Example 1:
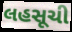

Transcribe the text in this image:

લહસૂચી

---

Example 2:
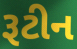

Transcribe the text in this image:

રૂટીન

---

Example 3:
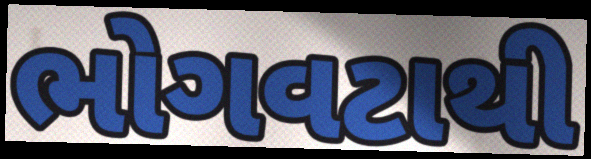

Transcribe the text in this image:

ભોગવટાથી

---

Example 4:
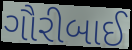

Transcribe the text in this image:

ગૌરીબાઈ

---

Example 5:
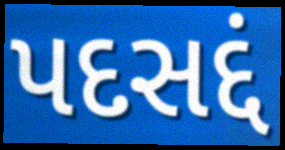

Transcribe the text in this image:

પદસદ્દં